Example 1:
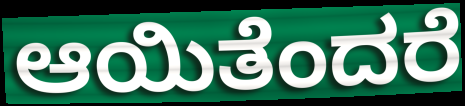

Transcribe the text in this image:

ಆಯಿತೆಂದರೆ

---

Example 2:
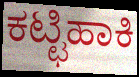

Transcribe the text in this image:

ಕಟ್ಟಿಹಾಕಿ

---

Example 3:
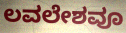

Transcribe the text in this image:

ಲವಲೇಶವೂ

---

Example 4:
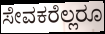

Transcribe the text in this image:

ಸೇವಕರೆಲ್ಲರೂ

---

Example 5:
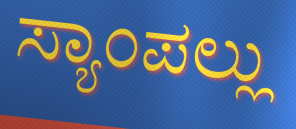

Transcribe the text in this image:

ಸ್ಯಾಂಪಲ್ಲು